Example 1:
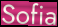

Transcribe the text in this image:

Sofia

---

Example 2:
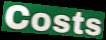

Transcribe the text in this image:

Costs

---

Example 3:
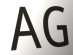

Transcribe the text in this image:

AG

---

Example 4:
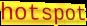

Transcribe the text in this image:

hotspot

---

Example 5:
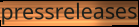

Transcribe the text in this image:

pressreleases